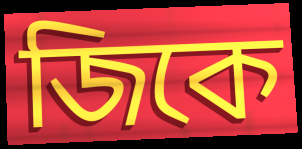
জিকে